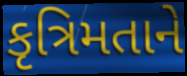
કૃત્રિમતાને